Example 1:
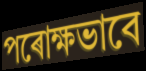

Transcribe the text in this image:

পৰোক্ষভাবে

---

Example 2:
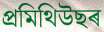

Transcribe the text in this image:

প্ৰমিথিউছৰ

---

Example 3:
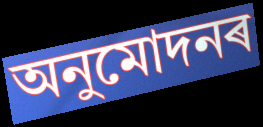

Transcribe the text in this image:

অনুমোদনৰ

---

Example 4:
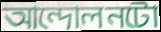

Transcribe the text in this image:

আন্দোলনটো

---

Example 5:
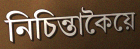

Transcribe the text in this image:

নিচিন্তাকৈয়ে